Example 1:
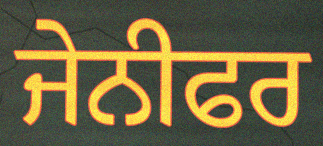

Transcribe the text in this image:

ਜੇਨੀਫਰ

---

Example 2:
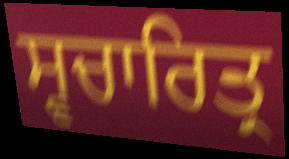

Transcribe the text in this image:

ਸ੍ਵਚਾਰਿਤ੍ਰ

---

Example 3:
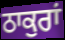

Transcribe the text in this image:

ਠਾਕੁਰਾਂ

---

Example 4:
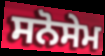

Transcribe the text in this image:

ਸਨੋਸੇਮ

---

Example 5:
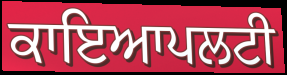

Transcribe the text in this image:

ਕਾਇਆਪਲਟੀ